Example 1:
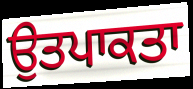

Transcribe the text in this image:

ਉਤਪਾਕਤਾ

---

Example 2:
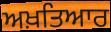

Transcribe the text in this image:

ਅਖ਼ਤਿਆਰ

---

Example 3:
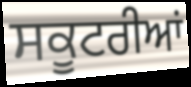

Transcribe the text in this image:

ਸਕੂਟਰੀਆਂ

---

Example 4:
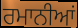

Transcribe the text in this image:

ਰਮਾਨੀਆਂ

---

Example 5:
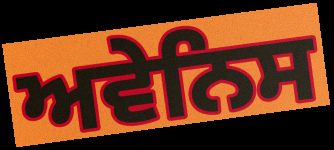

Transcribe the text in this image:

ਅਵੇਨਿਸ